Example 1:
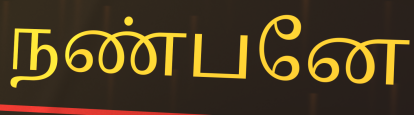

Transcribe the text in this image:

நண்பனே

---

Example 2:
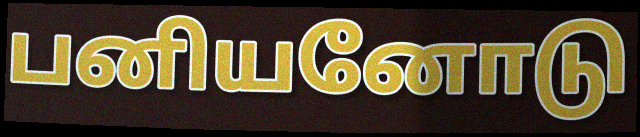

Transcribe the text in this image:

பனியனோடு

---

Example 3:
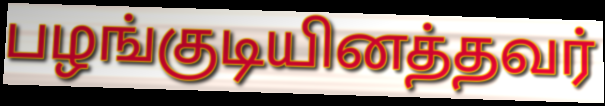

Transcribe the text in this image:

பழங்குடியினத்தவர்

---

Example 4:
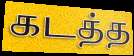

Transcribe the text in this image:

கடத்த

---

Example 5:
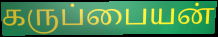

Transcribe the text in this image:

கருப்பையன்